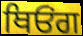
ਥਿਓਂਗ